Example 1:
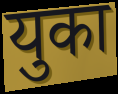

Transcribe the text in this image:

युका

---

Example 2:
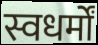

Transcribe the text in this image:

स्वधर्मों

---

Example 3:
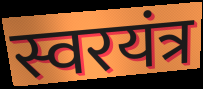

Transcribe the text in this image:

स्वरयंत्र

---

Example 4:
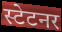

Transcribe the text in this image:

स्टेटनर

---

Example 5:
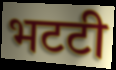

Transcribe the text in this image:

भटटी